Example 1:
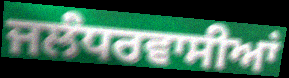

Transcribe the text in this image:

ਜਲੰਧਰਵਾਸੀਆਂ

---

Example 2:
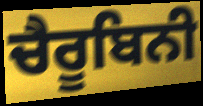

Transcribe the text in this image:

ਚੈਰੂਬਿਨੀ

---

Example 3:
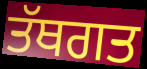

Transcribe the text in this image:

ਤੱਥਗਤ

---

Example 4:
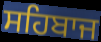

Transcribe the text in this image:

ਸਹਿਬਾਜ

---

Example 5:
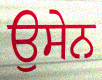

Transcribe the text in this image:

ਉਸੇਨ